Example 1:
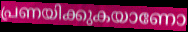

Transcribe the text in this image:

പ്രണയിക്കുകയാണോ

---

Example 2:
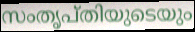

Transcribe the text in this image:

സംതൃപ്തിയുടെയും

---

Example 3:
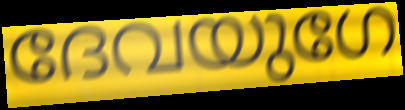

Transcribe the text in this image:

ദേവയുഗേ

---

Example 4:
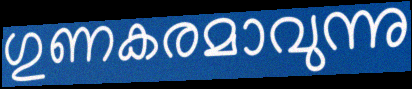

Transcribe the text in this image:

ഗുണകരമാവുന്നു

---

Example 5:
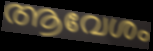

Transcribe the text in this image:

ആവേശം